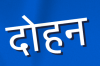
दोहन